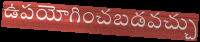
ఉపయోగించబడవచ్చు